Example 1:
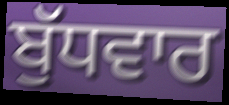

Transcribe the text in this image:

ਬੁੱਧਵਾਰ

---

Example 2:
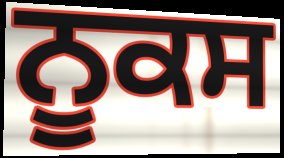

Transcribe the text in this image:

ਨੂਕਸ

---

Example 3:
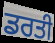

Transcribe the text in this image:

ਡਰਤੀ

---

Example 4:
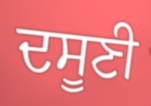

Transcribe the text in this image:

ਦਸੂਣੀ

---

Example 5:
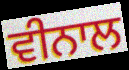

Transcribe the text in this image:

ਵੀਨਾਲ